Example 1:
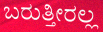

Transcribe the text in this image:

ಬರುತ್ತೀರಲ್ಲ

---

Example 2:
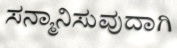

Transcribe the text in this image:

ಸನ್ಮಾನಿಸುವುದಾಗಿ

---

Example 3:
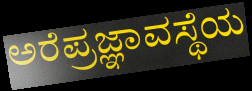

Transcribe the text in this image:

ಅರೆಪ್ರಜ್ಞಾವಸ್ಥೆಯ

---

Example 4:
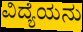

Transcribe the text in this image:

ವಿದ್ಯೆಯನು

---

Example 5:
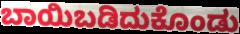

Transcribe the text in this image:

ಬಾಯಿಬಡಿದುಕೊಂಡು